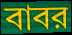
বাবর